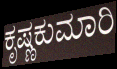
ಕೃಷ್ಣಕುಮಾರಿ